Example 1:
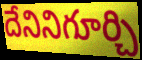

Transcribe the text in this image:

దేనినిగూర్చి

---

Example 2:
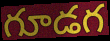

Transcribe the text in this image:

గూడగ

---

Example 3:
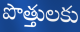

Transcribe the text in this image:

పొత్తులకు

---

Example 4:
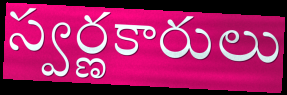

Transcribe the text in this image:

స్వర్ణకారులు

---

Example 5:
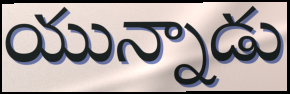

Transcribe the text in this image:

యున్నాడు